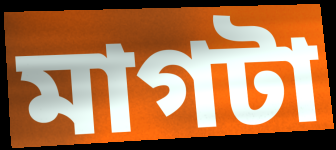
মাগটা